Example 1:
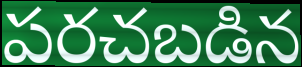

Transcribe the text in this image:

పరచబడిన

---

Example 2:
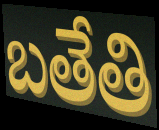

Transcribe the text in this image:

బతేతి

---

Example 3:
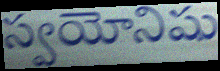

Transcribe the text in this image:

స్వయోనిషు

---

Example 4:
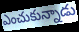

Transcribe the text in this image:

ఎంచుకున్నాడు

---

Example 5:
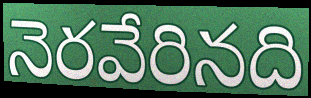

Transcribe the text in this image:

నెరవేరినది